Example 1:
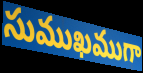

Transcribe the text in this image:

సుముఖముగా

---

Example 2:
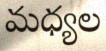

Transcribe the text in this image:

మధ్యల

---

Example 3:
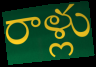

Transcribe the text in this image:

రాళ్లు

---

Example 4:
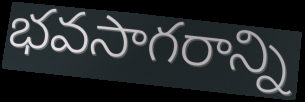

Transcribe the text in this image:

భవసాగరాన్ని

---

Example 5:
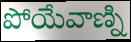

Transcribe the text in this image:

పోయేవాణ్ని